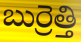
బుర్రెత్తి